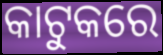
କାଟୁକରେ